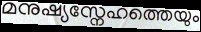
മനുഷ്യസ്നേഹത്തെയും